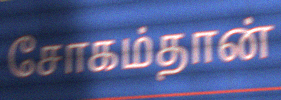
சோகம்தான்